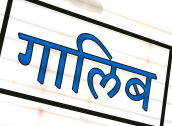
गालिब